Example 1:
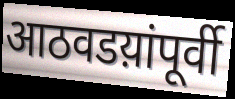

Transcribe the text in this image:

आठवडय़ांपूर्वी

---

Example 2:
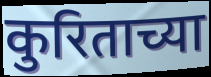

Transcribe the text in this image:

कुरिताच्या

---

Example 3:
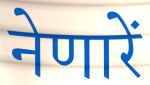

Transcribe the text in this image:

नेणारें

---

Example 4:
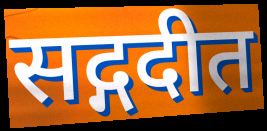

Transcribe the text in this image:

सद्गदीत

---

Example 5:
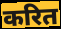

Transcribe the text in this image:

करित